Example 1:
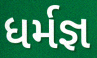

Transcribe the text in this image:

ધર્મજ્ઞ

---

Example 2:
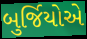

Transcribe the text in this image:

બુર્જિયોએ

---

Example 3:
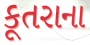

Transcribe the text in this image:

કૂતરાના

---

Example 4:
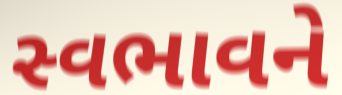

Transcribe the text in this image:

સ્વભાવને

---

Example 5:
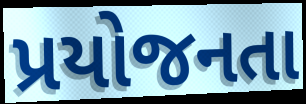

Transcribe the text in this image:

પ્રયોજનતા